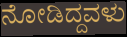
ನೋಡಿದ್ದವಳು